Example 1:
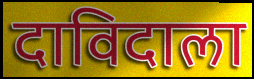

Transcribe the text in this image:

दाविदाला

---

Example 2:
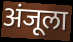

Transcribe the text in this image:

अंजूला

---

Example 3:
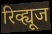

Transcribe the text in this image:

रिव्ह्यूज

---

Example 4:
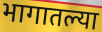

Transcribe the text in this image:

भागातल्या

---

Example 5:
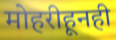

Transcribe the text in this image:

मोहरीहूनही